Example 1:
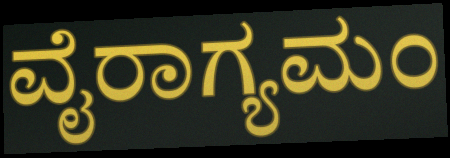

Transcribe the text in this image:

ವೈರಾಗ್ಯಮಂ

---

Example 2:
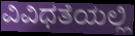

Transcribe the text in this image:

ವಿವಿಧತೆಯಲ್ಲಿ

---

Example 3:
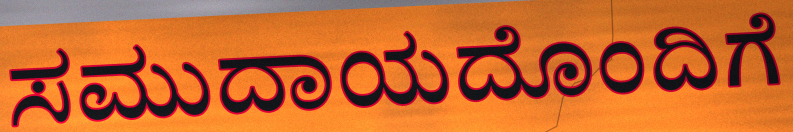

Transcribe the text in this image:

ಸಮುದಾಯದೊಂದಿಗೆ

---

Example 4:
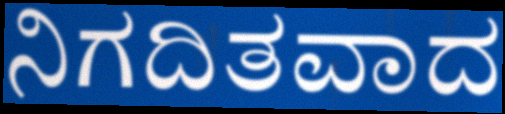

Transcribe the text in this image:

ನಿಗದಿತವಾದ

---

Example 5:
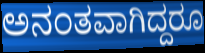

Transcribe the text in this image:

ಅನಂತವಾಗಿದ್ದರೂ